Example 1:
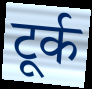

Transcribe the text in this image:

टूर्क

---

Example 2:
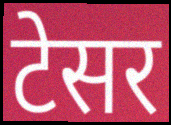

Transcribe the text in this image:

टेसर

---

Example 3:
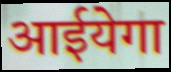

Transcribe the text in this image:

आईयेगा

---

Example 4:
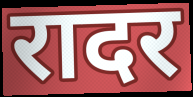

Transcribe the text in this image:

रादर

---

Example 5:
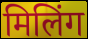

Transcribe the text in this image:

मिलिंग